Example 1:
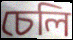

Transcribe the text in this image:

চেলি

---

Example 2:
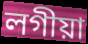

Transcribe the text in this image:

লগীয়া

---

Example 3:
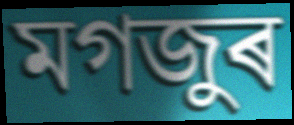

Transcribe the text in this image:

মগজুৰ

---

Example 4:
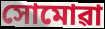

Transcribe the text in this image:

সোমোৱা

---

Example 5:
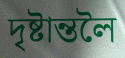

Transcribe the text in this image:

দৃষ্টান্তলৈ